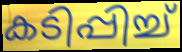
കടിപ്പിച്ച്